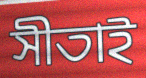
সীতাই